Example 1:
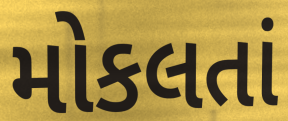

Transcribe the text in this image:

મોકલતાં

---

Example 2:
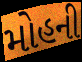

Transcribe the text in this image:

મોહની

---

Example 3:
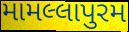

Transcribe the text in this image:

મામલ્લાપુરમ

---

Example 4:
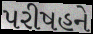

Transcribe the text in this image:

પરીષહને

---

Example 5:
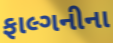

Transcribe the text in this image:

ફાલ્ગનીના